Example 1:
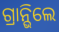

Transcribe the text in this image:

ଗ୍ରାନ୍ଭିଲେ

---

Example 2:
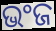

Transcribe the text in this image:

ଭଂଜ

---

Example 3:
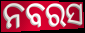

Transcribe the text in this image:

ନବରସ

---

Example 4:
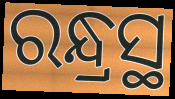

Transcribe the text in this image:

ରନ୍ଧ୍ରସ୍ଥ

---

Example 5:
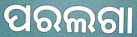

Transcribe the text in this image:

ପରଲଗା